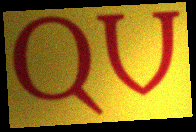
QU